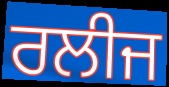
ਰਲੀਜ